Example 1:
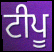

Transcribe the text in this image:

ਟੀਪੂ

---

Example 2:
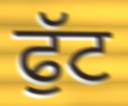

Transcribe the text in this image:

ਫੁੱਟ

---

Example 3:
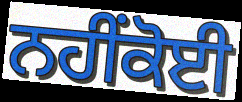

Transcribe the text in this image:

ਨਹੀਂਕੋਈ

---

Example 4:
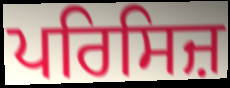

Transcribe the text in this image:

ਪਰਿਸਿਜ਼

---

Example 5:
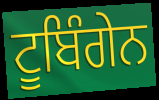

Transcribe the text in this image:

ਟੂਬਿੰਗੇਨ